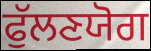
ਫੁੱਲਣਯੋਗ